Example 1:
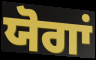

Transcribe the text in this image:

ਯੋਗਾਂ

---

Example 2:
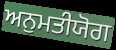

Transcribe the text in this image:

ਅਨੁਮਤੀਯੋਗ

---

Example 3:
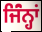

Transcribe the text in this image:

ਜਿੰਂਨ੍ਹਾਂ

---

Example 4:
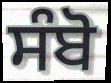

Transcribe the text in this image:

ਸੰਬੋ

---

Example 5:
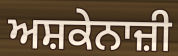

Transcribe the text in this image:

ਅਸ਼ਕੇਨਾਜ਼ੀ